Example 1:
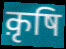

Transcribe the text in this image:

क़ृषि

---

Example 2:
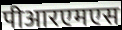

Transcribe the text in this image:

पीआरएमएस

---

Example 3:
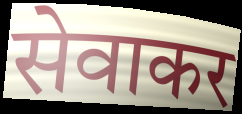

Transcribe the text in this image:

सेवाकर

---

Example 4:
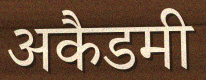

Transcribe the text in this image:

अकैडमी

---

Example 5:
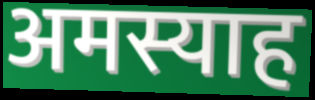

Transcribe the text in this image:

अमस्याह